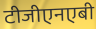
टीजीएनएबी